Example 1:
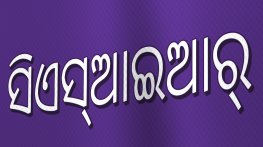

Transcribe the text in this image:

ସିଏସ୍ଆଇଆର୍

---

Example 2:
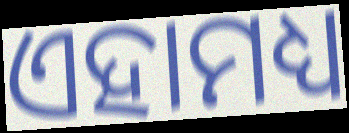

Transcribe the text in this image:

ଏହାମଧ୍ୟ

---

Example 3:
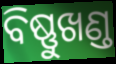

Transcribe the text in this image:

ବିଷ୍ଣୁଖଣ୍ଡ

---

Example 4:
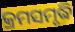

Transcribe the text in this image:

କ୍ରମସମୃଦ୍ଧି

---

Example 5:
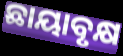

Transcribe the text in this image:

ଛାୟାବୃକ୍ଷ